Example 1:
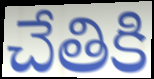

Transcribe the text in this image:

చేతికి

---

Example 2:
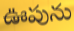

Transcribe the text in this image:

ఊపును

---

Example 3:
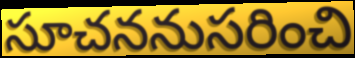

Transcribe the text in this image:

సూచననుసరించి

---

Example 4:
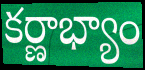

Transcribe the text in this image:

కర్ణాభ్యాం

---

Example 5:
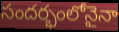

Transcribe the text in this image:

సందర్భంలోనైనా